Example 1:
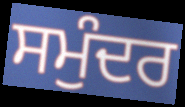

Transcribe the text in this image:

ਸਮੁੰਦਰ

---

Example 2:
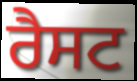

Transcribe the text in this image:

ਰੈਸਟ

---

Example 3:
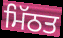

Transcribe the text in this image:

ਮਿੱਠਤ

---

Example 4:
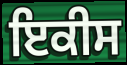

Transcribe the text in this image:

ਇਕੀਸ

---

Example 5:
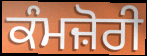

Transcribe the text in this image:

ਕੰਮਜ਼ੋਰੀ